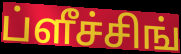
ப்ளீச்சிங்